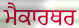
ਮੈਕਾਰਥਰ